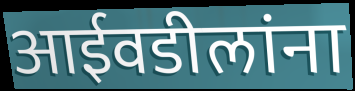
आईवडीलांना